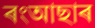
ৰংআছাৰ